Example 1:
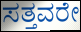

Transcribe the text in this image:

ಸತ್ತವರೇ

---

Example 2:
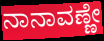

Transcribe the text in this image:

ನಾನಾವಣ್ಣೇ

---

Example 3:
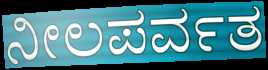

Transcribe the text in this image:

ನೀಲಪರ್ವತ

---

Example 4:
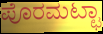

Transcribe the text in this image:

ಪೊರಮಟ್ಟಾ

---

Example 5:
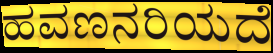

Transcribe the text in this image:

ಹವಣನರಿಯದೆ